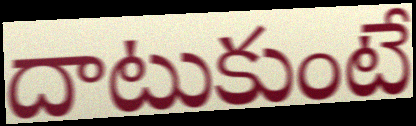
దాటుకుంటే